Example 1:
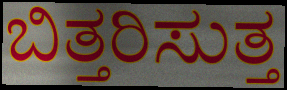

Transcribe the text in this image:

ಬಿತ್ತರಿಸುತ್ತ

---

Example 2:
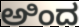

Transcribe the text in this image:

ಅಿಂದ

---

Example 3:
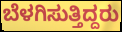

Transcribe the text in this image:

ಬೆಳಗಿಸುತ್ತಿದ್ದರು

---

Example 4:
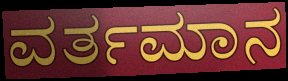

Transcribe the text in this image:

ವರ್ತಮಾನ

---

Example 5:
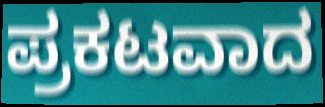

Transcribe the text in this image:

ಪ್ರಕಟವಾದ